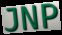
JNP